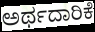
ಅರ್ಥದಾರಿಕೆ